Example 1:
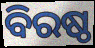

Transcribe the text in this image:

ବିରଷ୍ଠ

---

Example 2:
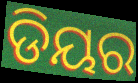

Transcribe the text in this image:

ଡିୟର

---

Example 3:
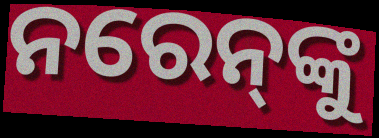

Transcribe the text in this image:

ନରେନ୍‍ଙ୍କୁ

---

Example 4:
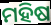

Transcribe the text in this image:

ମହିଷ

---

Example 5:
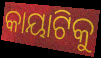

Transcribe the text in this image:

କାୟାଟିକୁ